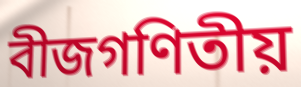
বীজগণিতীয়